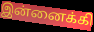
இன்னைக்கி